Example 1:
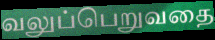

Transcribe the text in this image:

வலுப்பெறுவதை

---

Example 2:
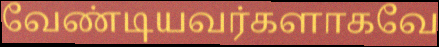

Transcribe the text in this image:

வேண்டியவர்களாகவே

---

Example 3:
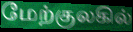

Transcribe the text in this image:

மேற்குலகில்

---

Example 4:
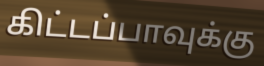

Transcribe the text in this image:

கிட்டப்பாவுக்கு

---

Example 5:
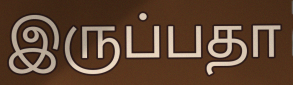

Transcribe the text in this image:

இருப்பதா